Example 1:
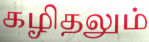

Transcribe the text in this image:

கழிதலும்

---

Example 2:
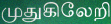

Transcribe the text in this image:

முதுகிலேறி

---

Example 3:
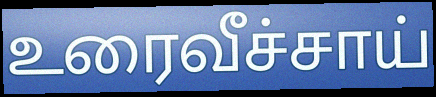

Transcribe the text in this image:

உரைவீச்சாய்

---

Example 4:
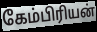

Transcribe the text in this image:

கேம்பிரியன்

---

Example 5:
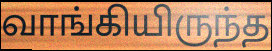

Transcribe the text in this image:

வாங்கியிருந்த